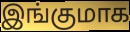
இங்குமாக